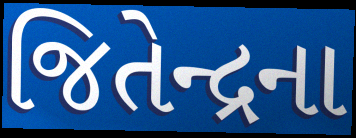
જિતેન્દ્રના